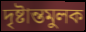
দৃষ্টান্তমুলক